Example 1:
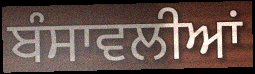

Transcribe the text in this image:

ਬੰਸਾਵਲੀਆਂ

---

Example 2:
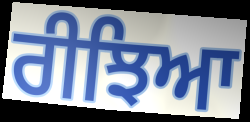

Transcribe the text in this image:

ਰੀਝਿਆ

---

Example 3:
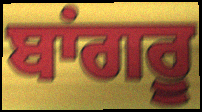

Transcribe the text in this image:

ਬਾਂਗਰੂ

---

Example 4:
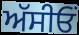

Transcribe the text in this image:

ਅੱਸੀਓਂ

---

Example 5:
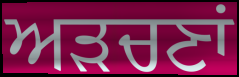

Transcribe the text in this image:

ਅੜਚਣਾਂ